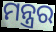
ମନ୍ତ୍ରର